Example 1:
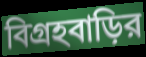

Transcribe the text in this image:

বিগ্রহবাড়ির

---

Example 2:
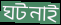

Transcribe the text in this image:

ঘটনাই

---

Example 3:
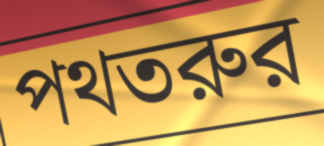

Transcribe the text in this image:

পথতরুর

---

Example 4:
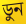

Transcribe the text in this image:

ডুন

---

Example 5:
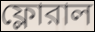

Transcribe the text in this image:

ফ্লোরাল